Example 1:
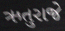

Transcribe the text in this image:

ઋતુરાજે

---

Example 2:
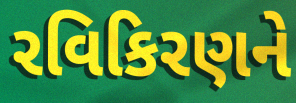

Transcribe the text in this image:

રવિકિરણને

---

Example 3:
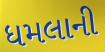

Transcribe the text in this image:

ધમલાની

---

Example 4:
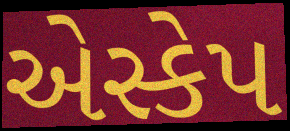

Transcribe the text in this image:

એસ્કેપ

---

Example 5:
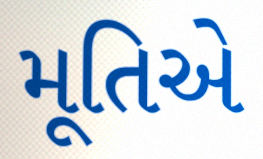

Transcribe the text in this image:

મૂતિએ